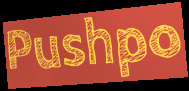
Pushpo